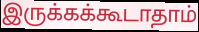
இருக்கக்கூடாதாம்